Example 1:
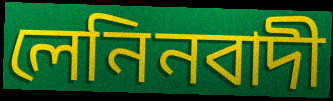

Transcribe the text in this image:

লেনিনবাদী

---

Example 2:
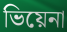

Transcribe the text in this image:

ভিয়েনা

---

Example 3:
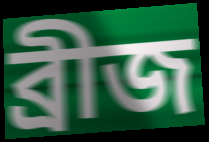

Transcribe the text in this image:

ব্ৰীজ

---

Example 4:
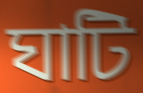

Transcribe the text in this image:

ঘাটি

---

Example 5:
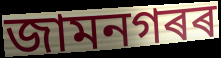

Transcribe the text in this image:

জামনগৰৰ